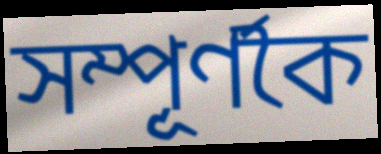
সম্পূৰ্ণকৈ